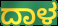
ದಾಳ